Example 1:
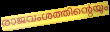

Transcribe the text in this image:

രാജവംശത്തിന്റെയും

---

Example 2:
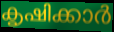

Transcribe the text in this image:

കൃഷിക്കാർ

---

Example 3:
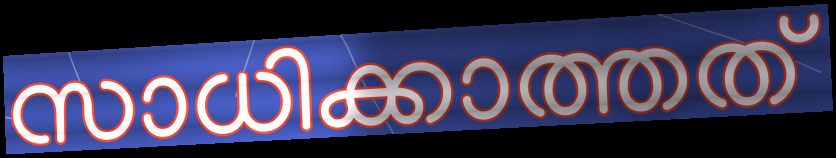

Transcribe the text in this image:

സാധിക്കാത്തത്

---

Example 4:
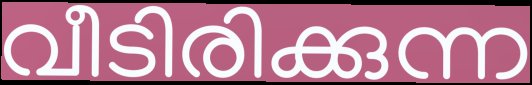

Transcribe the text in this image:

വീടിരിക്കുന്ന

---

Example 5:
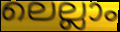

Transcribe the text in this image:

ലെല്ലാം